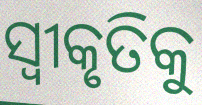
ସ୍ୱୀକୃତିକୁ